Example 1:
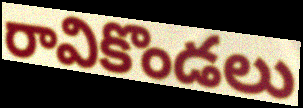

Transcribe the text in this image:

రావికొండలు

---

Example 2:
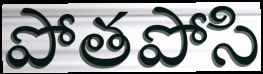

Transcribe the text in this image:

పోతపోసి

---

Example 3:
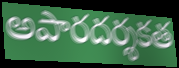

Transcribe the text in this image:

అపారదర్శకత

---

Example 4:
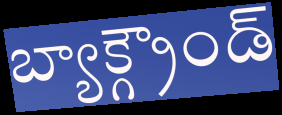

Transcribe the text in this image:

బ్యాక్గ్రౌండ్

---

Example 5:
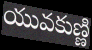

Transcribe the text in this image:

యువకుణ్ణి